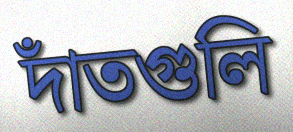
দাঁতগুলি